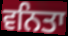
ਵਨਿਤਾ